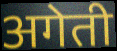
अगेती